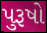
પુરૂષો